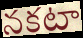
నకటా